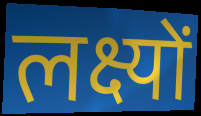
लक्ष्‍यों